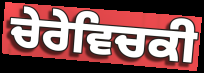
ਚੇਰੇਵਿਚਕੀ